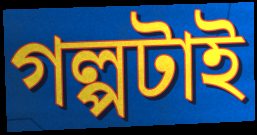
গল্পটাই